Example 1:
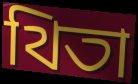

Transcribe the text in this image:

থিতা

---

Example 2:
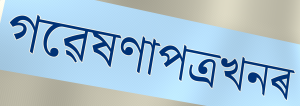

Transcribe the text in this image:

গৱেষণাপত্ৰখনৰ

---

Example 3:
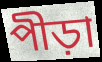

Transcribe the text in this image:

পীড়া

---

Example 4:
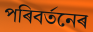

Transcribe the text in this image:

পৰিবৰ্তনেৰ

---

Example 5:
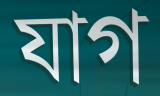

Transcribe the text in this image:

যাগ